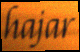
hajar